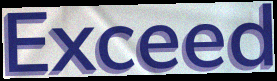
Exceed